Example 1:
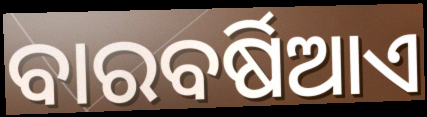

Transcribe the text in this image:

ବାରବର୍ଷିଆଏ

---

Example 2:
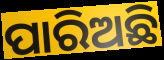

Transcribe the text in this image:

ପାରିଅଛି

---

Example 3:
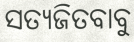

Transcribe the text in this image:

ସତ୍ୟଜିତବାବୁ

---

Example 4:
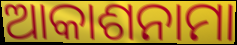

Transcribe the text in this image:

ଆକାଶନାମା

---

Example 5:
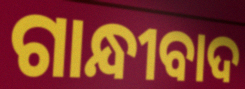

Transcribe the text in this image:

ଗାନ୍ଧୀବାଦ